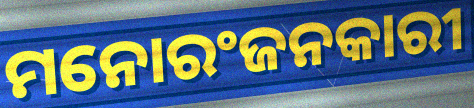
ମନୋରଂଜନକାରୀ